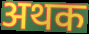
अथक